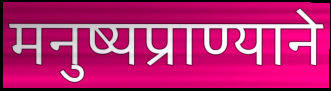
मनुष्यप्राण्याने